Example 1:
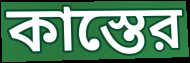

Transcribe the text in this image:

কাস্তের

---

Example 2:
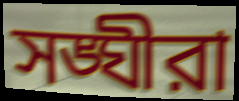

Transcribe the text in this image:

সঙ্ঘীরা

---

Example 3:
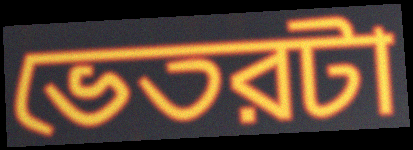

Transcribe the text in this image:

ভেতরটা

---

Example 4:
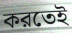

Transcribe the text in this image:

করতেই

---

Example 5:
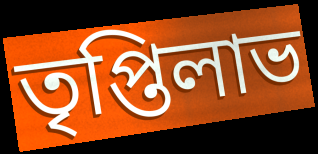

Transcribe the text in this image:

তৃপ্তিলাভ